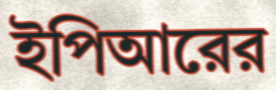
ইপিআরের